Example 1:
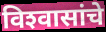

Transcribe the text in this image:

विश्‍वासांचे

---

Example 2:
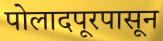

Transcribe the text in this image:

पोलादपूरपासून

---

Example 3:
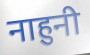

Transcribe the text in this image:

नाहुनी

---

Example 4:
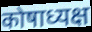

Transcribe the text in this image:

कोषाध्यक्ष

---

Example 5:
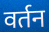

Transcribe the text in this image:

वर्तन